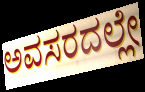
ಅವಸರದಲ್ಲೇ